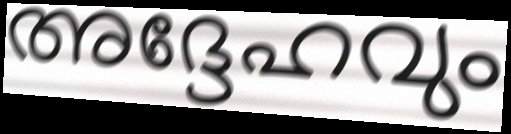
അദ്ദേഹവും